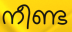
നീണ്ട